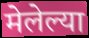
मेलेल्या